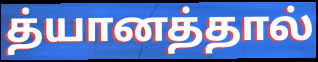
த்யானத்தால்